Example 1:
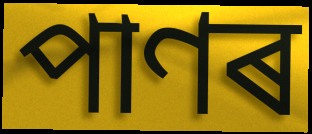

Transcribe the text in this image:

পাণৰ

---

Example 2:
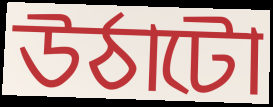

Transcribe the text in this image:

উঠাটো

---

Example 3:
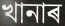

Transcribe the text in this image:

খানাৰ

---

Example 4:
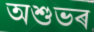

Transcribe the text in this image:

অশুভৰ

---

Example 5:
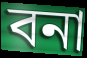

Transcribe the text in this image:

বনা